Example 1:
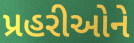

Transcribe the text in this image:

પ્રહરીઓને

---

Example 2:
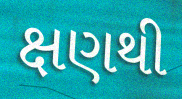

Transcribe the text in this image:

ક્ષણથી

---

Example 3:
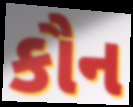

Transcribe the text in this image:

કૌન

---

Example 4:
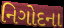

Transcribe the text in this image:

નિગોદના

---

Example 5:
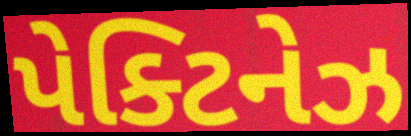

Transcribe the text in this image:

પેક્ટિનેઝ